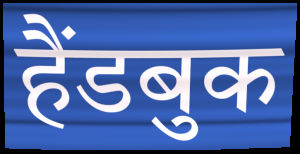
हैंडबुक